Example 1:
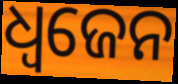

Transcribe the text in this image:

ଧ୍ଵଜେନ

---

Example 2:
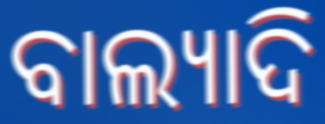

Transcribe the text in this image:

ବାଲ୍ୟାଦି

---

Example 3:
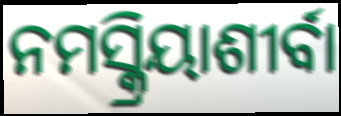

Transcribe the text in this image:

ନମସ୍କ୍ରିୟାଶୀର୍ବା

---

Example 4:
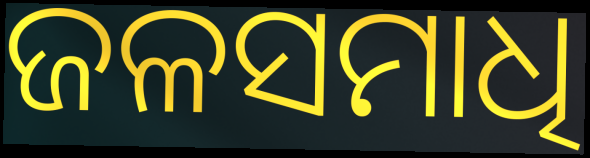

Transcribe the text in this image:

ଜଳସମାଧି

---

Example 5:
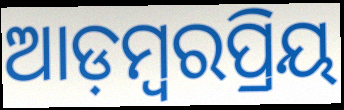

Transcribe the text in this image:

ଆଡ଼ମ୍ବରପ୍ରିୟ